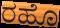
ರಹೊ